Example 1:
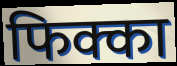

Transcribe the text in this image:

फिक्का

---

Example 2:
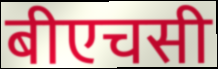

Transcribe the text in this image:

बीएचसी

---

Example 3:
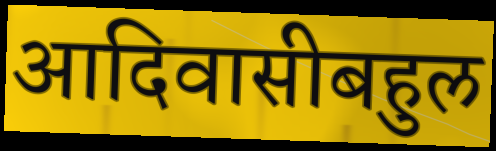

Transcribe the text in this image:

आदिवासीबहुल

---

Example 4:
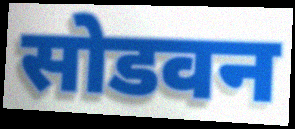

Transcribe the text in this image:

सोडवन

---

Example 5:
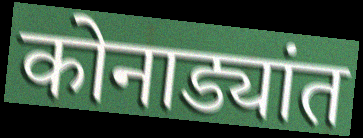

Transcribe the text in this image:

कोनाड्यांत